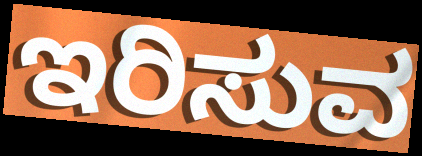
ಇರಿಸುವ